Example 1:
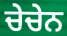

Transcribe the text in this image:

ਚੇਚੇਨ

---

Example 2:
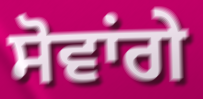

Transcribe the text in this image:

ਸੋਵਾਂਗੇ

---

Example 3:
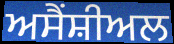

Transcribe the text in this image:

ਅਸੈਂਸ਼ੀਅਲ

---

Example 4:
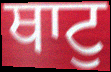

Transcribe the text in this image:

ਥਾਟੁ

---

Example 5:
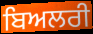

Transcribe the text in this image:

ਬਿਅਲਰੀ